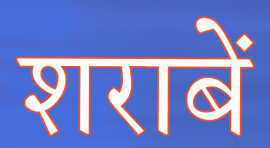
शराबें